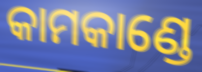
କାମକାଣ୍ଡେ